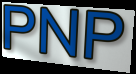
PNP